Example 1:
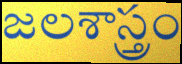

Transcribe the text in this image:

జలశాస్త్రం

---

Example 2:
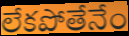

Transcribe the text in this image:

లేకపోతేనేం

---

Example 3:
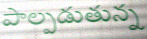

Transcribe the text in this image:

పాల్పడుతున్న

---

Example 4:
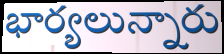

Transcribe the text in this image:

భార్యలున్నారు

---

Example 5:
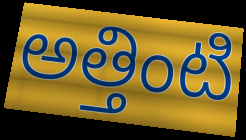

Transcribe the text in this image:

అత్తింటి